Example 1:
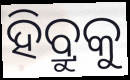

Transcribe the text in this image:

ହିବ୍ରୁକୁ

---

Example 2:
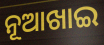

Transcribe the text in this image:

ନୂଆଖାଇ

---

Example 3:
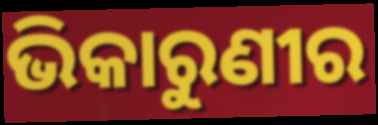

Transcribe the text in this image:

ଭିକାରୁଣୀର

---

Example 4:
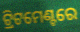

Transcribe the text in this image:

ଟ୍ରିଟମେଣ୍ଟରେ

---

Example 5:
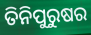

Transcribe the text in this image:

ତିନିପୁରୁଷର